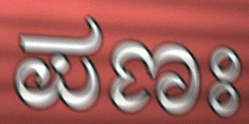
ಪಣಃ